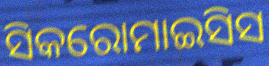
ସିକରୋମାଇସିସ